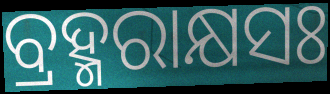
ବ୍ରହ୍ମରାକ୍ଷସଃ